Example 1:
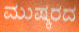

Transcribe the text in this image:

ಮುಷ್ಕರದ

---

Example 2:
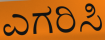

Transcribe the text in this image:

ಎಗರಿಸಿ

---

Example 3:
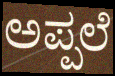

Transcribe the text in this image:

ಅಪ್ಪಲೆ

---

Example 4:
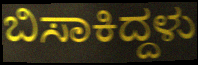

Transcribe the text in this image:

ಬಿಸಾಕಿದ್ದಳು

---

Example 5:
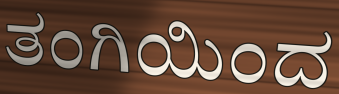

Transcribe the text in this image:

ತಂಗಿಯಿಂದ